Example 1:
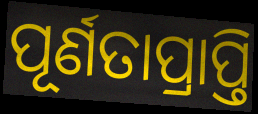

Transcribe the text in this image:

ପୂର୍ଣତାପ୍ରାପ୍ତି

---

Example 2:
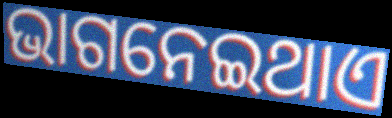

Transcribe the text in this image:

ଭାଗନେଇଥାଏ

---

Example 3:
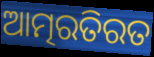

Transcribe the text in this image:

ଆତ୍ମରତିରତ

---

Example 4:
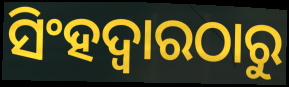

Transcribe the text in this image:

ସିଂହଦ୍ୱାରଠାରୁ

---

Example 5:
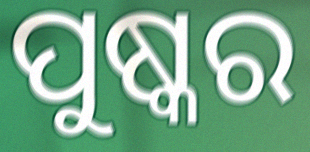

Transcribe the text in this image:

ପୁଷ୍କର